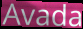
Avada